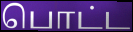
பொட்ட